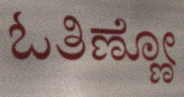
ಓತಿಣ್ಣೋ